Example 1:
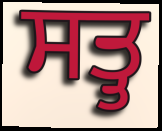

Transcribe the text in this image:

ਸਤ੍ਤ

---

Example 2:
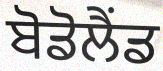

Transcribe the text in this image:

ਬੋਡੋਲੈਂਡ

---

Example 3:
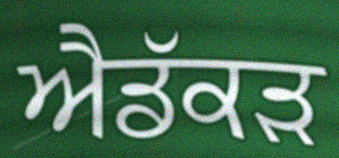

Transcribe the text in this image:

ਐਡੱਕੜ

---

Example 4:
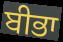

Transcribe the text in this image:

ਬੀਭਾ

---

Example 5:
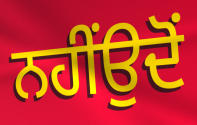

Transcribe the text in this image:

ਨਹੀਂਉਦੋਂ